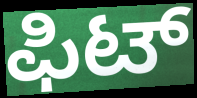
ಫಿಟ್